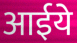
आईये